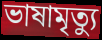
ভাষামৃত্যু